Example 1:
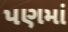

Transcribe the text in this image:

પણમાં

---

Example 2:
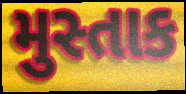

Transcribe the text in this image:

મુસ્તાક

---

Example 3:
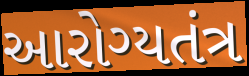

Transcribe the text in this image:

આરોગ્યતંત્ર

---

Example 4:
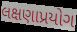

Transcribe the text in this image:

લક્ષણાપ્રયોગ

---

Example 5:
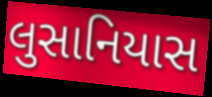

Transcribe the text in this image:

લુસાનિયાસ